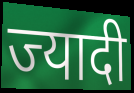
ज्यादी